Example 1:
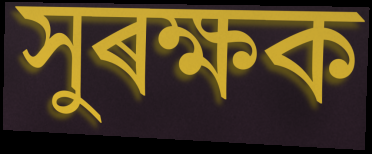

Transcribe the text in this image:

সুৰক্ষক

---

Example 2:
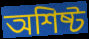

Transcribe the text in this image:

অশিষ্ট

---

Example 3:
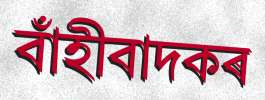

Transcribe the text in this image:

বাঁহীবাদকৰ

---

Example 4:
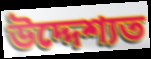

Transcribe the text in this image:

উদ্দেশ্যত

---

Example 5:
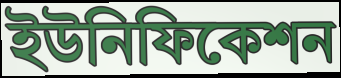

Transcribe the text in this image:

ইউনিফিকেশন